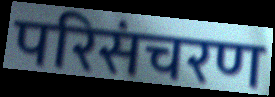
परिसंचरण